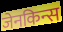
जेनकिन्स